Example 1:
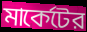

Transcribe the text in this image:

মার্কেটের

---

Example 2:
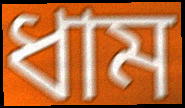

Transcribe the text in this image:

ধাম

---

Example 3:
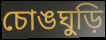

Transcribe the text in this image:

চোঙঘুড়ি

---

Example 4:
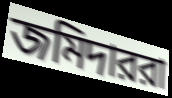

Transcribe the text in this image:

জমিদাররা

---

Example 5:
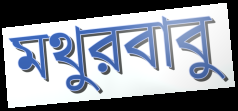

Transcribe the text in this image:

মথুরবাবু